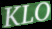
KLO